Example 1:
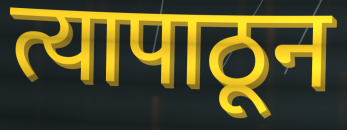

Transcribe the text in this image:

त्यापाठून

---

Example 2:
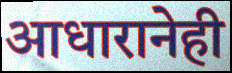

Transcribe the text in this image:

आधारानेही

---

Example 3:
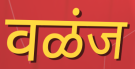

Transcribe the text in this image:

वळंज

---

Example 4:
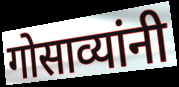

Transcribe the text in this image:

गोसाव्यांनी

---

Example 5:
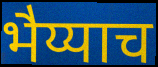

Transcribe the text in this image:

भैय्याच